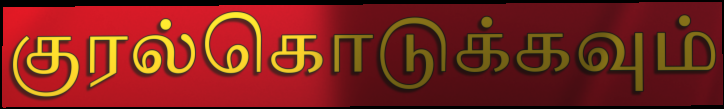
குரல்கொடுக்கவும்